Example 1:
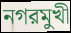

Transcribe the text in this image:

নগরমুখী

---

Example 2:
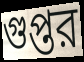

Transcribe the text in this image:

গুপ্তর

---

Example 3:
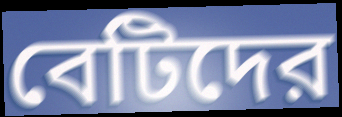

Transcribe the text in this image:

বেটিদের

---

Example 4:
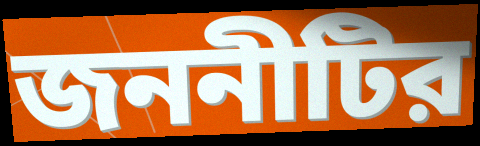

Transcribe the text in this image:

জননীটির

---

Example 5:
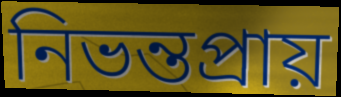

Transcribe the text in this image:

নিভন্তপ্রায়